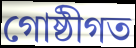
গোষ্ঠীগত